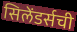
सिलेंडर्सची